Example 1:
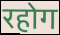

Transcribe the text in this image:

रहोग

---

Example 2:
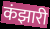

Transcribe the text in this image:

कंझारी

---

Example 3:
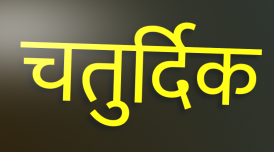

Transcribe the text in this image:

चतुर्दिक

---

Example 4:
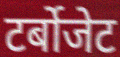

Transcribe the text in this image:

टर्बोजेट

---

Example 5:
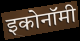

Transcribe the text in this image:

इकोनॉमी